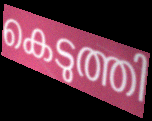
കെടുത്തി